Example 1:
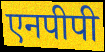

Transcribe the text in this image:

एनपीपी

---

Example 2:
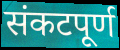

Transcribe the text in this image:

संकटपूर्ण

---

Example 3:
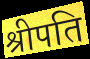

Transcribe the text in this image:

श्रीपति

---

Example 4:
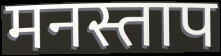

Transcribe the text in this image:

मनस्ताप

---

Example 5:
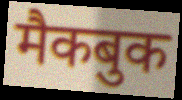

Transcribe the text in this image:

मैकबुक